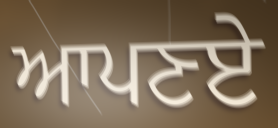
ਆਪਣਏ